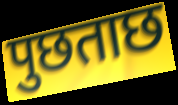
पुछताछ